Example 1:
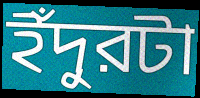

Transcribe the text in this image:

ইঁদুরটা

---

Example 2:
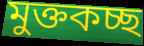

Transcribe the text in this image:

মুক্তকচ্ছ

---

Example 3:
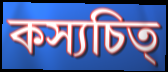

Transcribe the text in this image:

কস্যচিত্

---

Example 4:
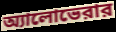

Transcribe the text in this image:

অ্যালোভেরার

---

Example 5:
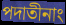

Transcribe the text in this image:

পদাতীনাং